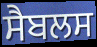
ਸੈਬਲਸ